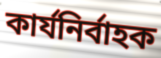
কাৰ্যনিৰ্বাহক